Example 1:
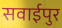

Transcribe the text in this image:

सवाईपुर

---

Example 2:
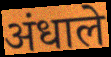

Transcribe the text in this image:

अंधाले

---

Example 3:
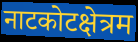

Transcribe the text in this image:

नाटकोटक्षेत्रम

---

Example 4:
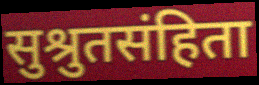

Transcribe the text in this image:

सुश्रुतसंहिता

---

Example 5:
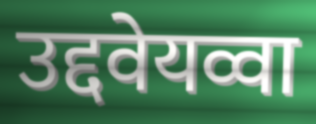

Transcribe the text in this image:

उद्दवेयव्वा